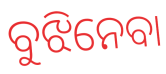
ବୁଝିନେବା